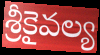
శ్రీకైవల్య